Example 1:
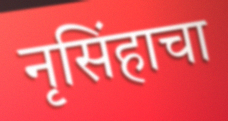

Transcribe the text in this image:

नृसिंहाचा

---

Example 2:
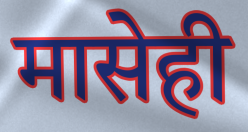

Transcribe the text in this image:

मासेही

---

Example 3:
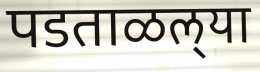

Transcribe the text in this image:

पडताळल्या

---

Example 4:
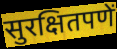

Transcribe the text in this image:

सुरक्षितपणें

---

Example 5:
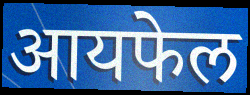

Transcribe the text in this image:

आयफेल